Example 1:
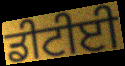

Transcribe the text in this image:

ਡੀਟੀਈ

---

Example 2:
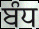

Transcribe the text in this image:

ਬੰਧ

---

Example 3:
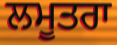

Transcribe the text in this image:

ਲਮੂਤਰਾ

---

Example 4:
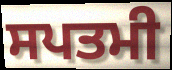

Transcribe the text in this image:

ਸਪਤਮੀ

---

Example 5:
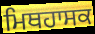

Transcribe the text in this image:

ਮਿਥਹਾਸਕ